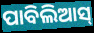
ପାବିଲିଆସ୍